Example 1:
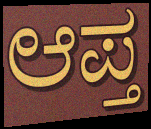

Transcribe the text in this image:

ಆಪ್ತ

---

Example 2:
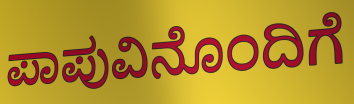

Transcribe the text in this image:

ಪಾಪುವಿನೊಂದಿಗೆ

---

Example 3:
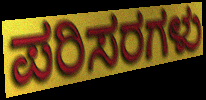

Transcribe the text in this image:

ಪರಿಸರಗಳು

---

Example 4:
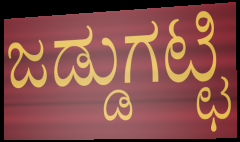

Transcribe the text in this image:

ಜಡ್ಡುಗಟ್ಟಿ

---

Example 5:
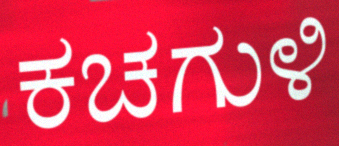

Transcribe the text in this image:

ಕಚಗುಳಿ